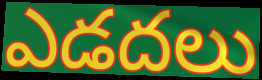
ఎడదలు